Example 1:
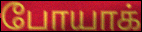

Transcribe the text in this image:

போயாக்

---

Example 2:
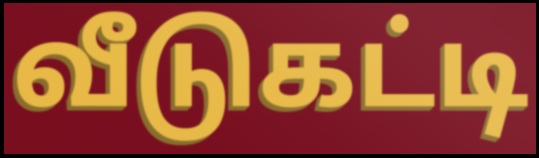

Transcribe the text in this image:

வீடுகட்டி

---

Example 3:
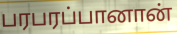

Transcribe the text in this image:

பரபரப்பானான்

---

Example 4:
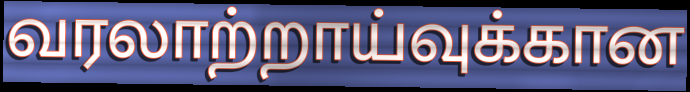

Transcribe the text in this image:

வரலாற்றாய்வுக்கான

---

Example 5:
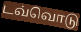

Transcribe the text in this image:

டவ்வொடு